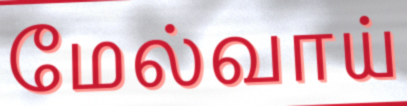
மேல்வாய்